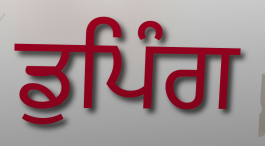
ਡੁਪਿੰਗ